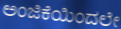
ಅಂಜಿಕೆಯಿಂದಲೇ